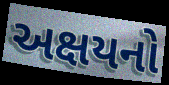
અક્ષયનો